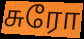
சுரோ